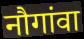
नौगांवा